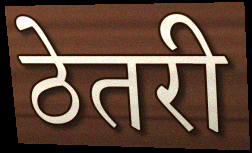
ठेतरी